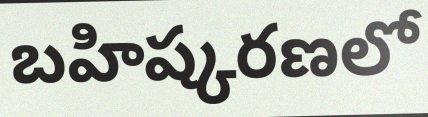
బహిష్కరణలో